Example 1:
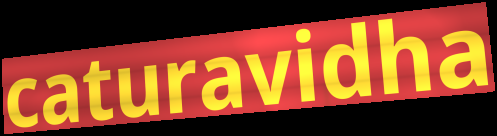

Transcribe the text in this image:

caturavidha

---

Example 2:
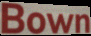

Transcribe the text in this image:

Bown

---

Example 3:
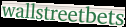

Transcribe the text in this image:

wallstreetbets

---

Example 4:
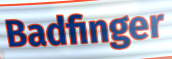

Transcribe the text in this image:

Badfinger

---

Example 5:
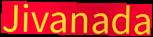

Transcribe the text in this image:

Jivanada